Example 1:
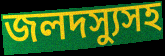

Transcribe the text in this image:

জলদস্যুসহ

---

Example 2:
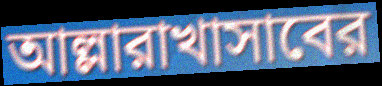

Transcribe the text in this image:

আল্লারাখাসাবের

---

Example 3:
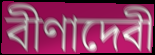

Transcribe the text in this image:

বীণাদেবী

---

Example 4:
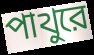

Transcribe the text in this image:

পাথুরে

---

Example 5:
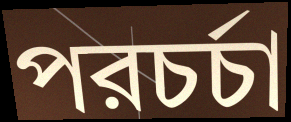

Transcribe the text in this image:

পরচর্চা